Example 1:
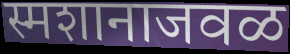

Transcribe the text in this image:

स्मशानाजवळ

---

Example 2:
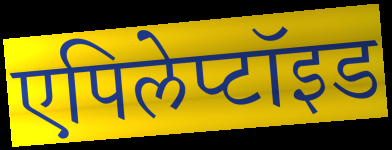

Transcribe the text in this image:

एपिलेप्टॉइड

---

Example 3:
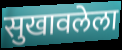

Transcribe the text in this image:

सुखावलेला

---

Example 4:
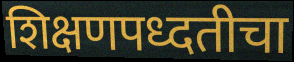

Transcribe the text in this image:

शिक्षणपध्दतीचा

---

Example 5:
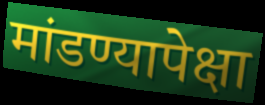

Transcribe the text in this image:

मांडण्यापेक्षा